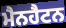
ਮੈਨਹੈਟਨ